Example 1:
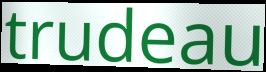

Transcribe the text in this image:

trudeau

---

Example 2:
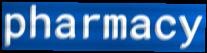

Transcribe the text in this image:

pharmacy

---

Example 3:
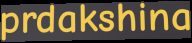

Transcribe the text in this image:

prdakshina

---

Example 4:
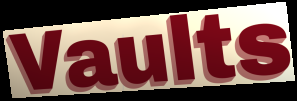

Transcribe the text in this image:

Vaults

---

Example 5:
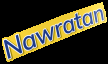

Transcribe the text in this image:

Nawratan